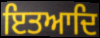
ਇਤਆਦਿ